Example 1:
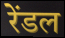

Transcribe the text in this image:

रेंडल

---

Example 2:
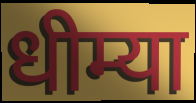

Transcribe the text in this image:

धीम्या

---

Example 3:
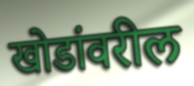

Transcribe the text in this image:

खोडांवरील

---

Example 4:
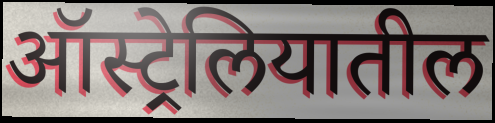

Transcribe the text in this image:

ऑस्ट्रेलियातील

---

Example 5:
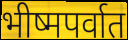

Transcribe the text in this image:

भीष्मपर्वात